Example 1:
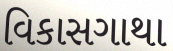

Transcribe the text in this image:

વિકાસગાથા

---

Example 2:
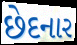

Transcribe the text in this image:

છેદનાર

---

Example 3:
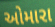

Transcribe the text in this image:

ઓમારા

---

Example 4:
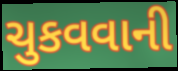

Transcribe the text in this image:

ચુકવવાની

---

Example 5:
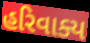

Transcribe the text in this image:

હરિવાક્ય